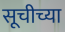
सूचीच्या